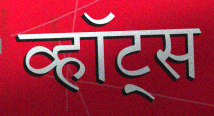
व्हॉट्‌स